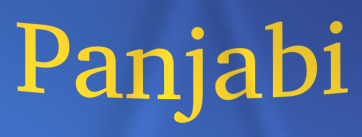
Panjabi